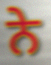
ਨੇ